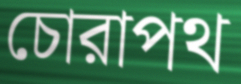
চোরাপথ